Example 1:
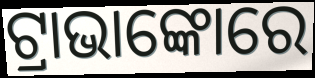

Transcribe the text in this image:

ଟ୍ରାଭାଙ୍କୋରେ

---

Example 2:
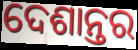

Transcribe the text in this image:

ଦେଶାନ୍ତର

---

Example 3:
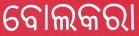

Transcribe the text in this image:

ବୋଲକରା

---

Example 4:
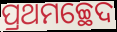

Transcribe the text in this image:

ପ୍ରଥମଚ୍ଛେଦ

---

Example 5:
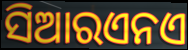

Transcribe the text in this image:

ସିଆରଏନଏ